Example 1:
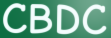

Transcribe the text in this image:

CBDC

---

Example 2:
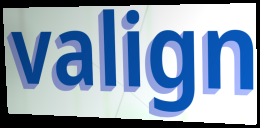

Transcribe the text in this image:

valign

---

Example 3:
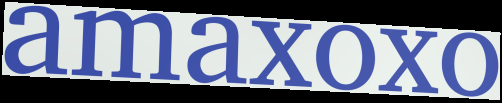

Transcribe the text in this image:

amaxoxo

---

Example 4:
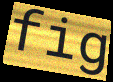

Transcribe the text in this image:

fig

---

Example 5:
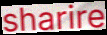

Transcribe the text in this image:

sharire